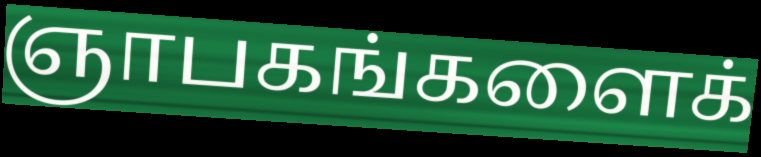
ஞாபகங்களைக்